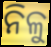
ନିଳୁ